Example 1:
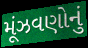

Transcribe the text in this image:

મૂંઝવણોનું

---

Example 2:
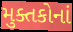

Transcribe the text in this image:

મુક્તકોનાં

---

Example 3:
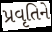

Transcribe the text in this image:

પ્રવૃતિને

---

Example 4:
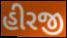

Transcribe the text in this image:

હીરજી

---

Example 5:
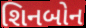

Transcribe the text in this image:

શિનબોન